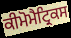
ਕੀਮੋਮੈਟ੍ਰਿਕਸ